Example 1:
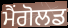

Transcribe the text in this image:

ਮੈਂਗੋਲਡ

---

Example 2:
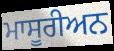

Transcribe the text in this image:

ਮਾਸੂਰੀਅਨ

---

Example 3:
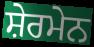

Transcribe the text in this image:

ਸ਼ੇਰਮੇਨ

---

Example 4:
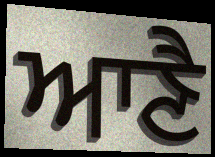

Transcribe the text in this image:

ਆਣੈ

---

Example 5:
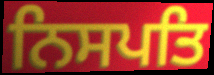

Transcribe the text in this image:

ਨਿਸਪਤਿ